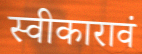
स्वीकारावं